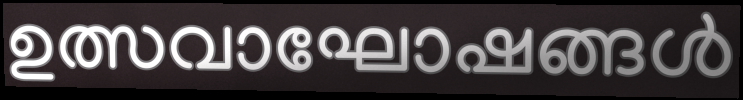
ഉത്സവാഘോഷങ്ങൾ